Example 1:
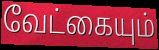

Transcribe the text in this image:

வேட்கையும்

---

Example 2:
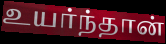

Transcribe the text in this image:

உயர்ந்தான்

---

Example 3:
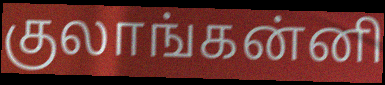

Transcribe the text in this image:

குலாங்கன்னி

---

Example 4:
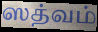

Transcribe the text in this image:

ஸத்வம்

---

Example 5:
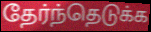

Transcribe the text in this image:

தேர்ந்தெடுக்க